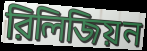
রিলিজিয়ন